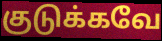
குடுக்கவே